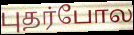
புதர்போல